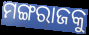
ମଙ୍ଗରାଜକୁ